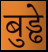
बुड्ढे